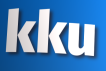
kku